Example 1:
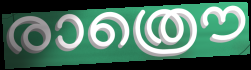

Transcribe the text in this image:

രാത്രൌ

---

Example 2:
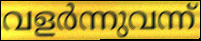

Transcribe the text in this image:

വളർന്നുവന്ന്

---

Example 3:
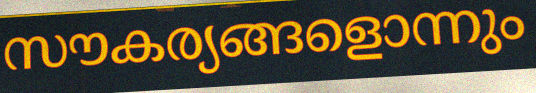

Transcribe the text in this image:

സൗകര്യങ്ങളൊന്നും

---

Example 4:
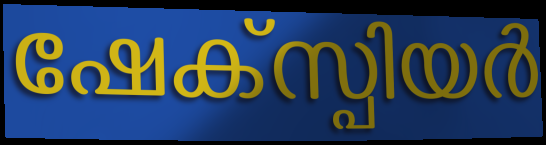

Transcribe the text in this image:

ഷേക്സ്പിയർ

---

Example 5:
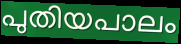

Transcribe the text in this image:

പുതിയപാലം